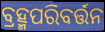
ବ୍ରହ୍ମପରିବର୍ତ୍ତନ